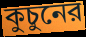
কুচুনের